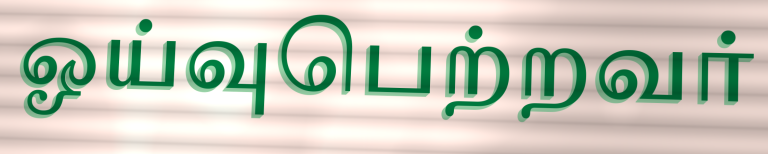
ஓய்வுபெற்றவர்